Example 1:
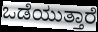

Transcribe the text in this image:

ಒಡೆಯುತ್ತಾರೆ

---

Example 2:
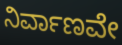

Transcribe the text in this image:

ನಿರ್ವಾಣವೇ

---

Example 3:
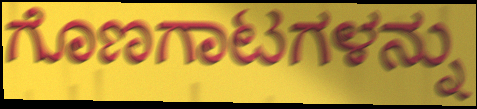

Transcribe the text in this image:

ಗೊಣಗಾಟಗಳನ್ನು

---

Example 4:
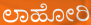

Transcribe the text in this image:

ಲಾಹೋರಿ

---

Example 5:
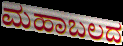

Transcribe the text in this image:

ಮಹಾಬಲದ